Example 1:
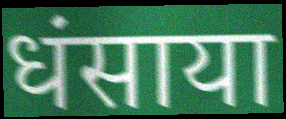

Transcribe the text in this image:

धंसाया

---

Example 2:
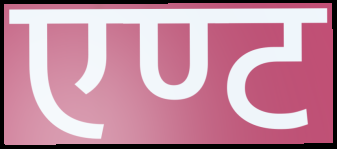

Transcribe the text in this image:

एण्ट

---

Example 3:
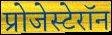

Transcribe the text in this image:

प्रोजेस्टेरॉन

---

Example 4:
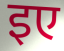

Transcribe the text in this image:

इए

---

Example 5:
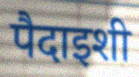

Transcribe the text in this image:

पैदाइशी